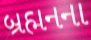
બ્રહ્મનના